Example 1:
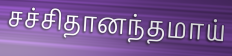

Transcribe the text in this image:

சச்சிதானந்தமாய்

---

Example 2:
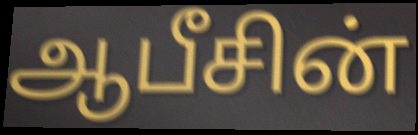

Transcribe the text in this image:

ஆபீசின்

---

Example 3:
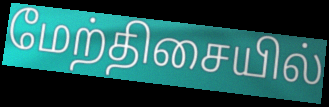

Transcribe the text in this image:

மேற்திசையில்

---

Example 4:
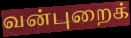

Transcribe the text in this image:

வன்புறைக்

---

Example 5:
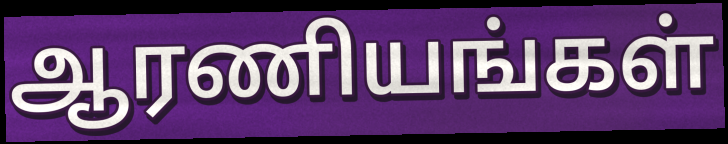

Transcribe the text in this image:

ஆரணியங்கள்